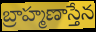
బ్రాహ్మణాస్తేన